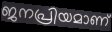
ജനപ്രിയമാണ്